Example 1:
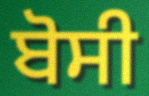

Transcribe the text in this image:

ਬੋਸੀ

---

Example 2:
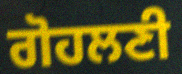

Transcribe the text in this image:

ਗੋਹਲਣੀ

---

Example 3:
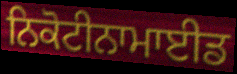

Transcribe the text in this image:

ਨਿਕੋਟੀਨਾਮਾਈਡ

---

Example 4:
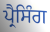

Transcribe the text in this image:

ਪ੍ਰੈਸਿੰਗ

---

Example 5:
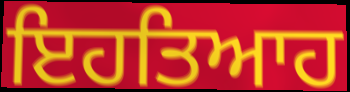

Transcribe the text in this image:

ਇਹਤਿਆਹ